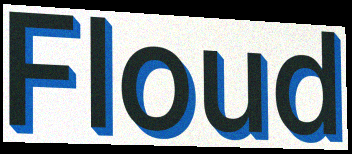
Floud